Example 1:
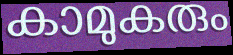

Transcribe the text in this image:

കാമുകരും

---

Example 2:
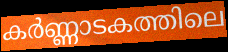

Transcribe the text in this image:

കർണ്ണാടകത്തിലെ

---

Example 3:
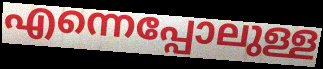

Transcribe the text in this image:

എന്നെപ്പോലുള്ള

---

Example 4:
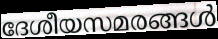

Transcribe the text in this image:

ദേശീയസമരങ്ങൾ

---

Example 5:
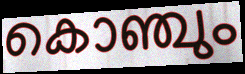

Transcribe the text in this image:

കൊഞ്ചും